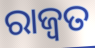
ରାଜ୍ୱତ